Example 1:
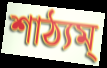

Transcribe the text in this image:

শাঠ্যম্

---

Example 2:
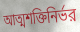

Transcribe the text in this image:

আত্মশক্তিনির্ভর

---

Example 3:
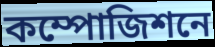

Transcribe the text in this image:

কম্পোজিশনে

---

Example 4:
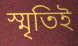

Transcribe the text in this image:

স্মৃতিই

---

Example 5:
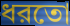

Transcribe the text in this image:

ধরতো